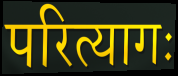
परित्यागः